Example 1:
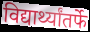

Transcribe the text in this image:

विद्यार्थ्यांतर्फे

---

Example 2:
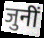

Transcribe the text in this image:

जुनीं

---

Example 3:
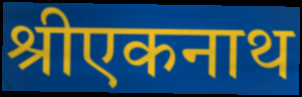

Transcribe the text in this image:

श्रीएकनाथ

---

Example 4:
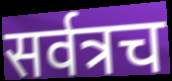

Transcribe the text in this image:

सर्वत्रच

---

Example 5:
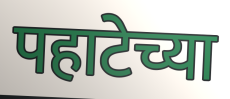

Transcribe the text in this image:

पहाटेच्या